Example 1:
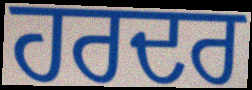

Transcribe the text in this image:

ਹਰਦਰ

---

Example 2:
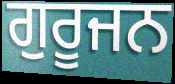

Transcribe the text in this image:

ਗੁਰੂਜਨ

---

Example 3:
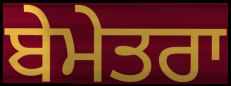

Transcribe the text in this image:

ਬੇਮੇਤਰਾ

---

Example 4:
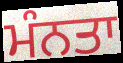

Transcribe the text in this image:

ਮੰਨਤਾ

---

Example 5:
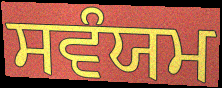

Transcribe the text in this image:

ਸਵੰਯਮ